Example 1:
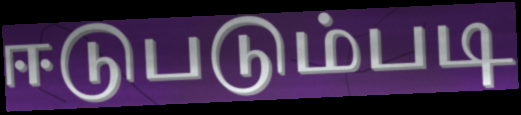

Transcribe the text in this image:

ஈடுபடும்படி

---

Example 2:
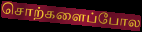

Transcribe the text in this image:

சொற்களைப்போல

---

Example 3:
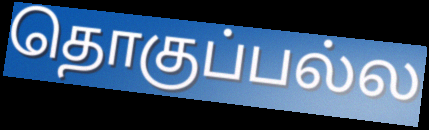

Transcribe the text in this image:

தொகுப்பல்ல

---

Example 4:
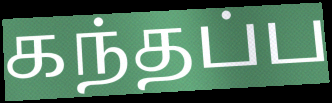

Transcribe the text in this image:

கந்தப்ப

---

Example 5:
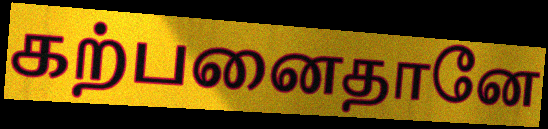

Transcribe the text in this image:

கற்பனைதானே